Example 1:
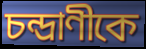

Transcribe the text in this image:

চন্দ্রাণীকে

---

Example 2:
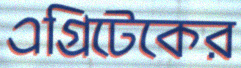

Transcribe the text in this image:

এগ্রিটেকের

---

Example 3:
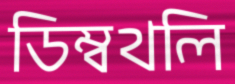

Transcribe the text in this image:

ডিম্বথলি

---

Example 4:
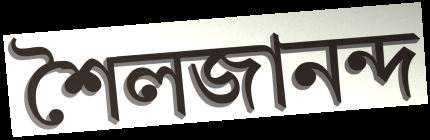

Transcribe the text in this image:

শৈলজানন্দ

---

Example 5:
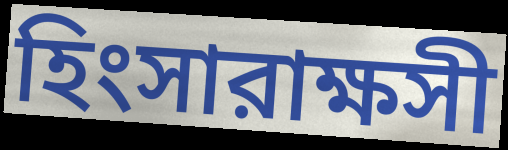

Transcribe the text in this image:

হিংসারাক্ষসী